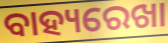
ବାହ୍ୟରେଖା